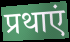
प्रथाएं